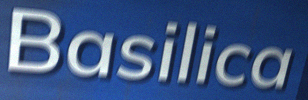
Basilica